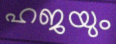
ഹജയും